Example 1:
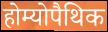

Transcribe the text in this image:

होम्योपैथिक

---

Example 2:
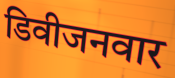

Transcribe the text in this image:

डिवीजनवार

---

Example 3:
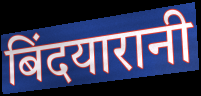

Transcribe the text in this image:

बिंदयारानी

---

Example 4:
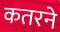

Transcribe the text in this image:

कतरने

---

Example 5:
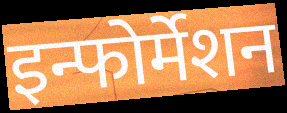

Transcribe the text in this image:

इन्फोर्मेशन